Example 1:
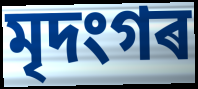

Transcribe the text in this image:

মৃদংগৰ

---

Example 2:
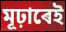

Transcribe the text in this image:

মূঢ়াৰেই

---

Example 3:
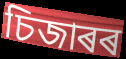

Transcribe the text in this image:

চিজাৰৰ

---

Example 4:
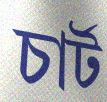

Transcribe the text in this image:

চাৰ্ট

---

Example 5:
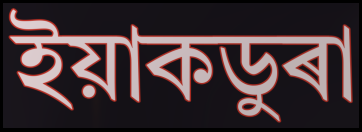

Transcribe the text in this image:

ইয়াকডুৰা